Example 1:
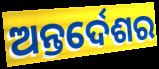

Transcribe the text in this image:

ଅନ୍ତର୍ଦେଶର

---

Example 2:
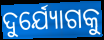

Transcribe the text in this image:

ଦୁର୍ଯ୍ୟୋଗକୁ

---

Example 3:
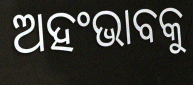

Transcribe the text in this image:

ଅହଂଭାବକୁ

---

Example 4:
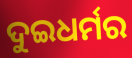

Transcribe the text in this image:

ଦୁଇଧର୍ମର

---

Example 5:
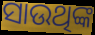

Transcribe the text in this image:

ସାଉଥିଙ୍କ